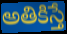
అతికిస్తే